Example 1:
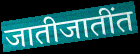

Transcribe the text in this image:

जातीजातींत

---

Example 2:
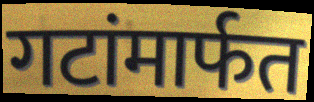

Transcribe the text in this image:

गटांमार्फत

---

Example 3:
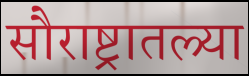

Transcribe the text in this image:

सौराष्ट्रातल्या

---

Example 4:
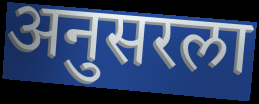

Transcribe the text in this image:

अनुसरला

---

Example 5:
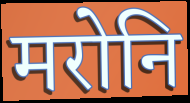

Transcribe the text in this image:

मरोनि